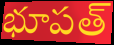
భూపత్